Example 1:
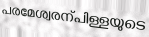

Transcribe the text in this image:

പരമേശ്വരന്പിള്ളയുടെ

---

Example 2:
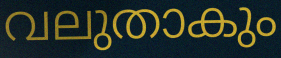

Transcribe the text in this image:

വലുതാകും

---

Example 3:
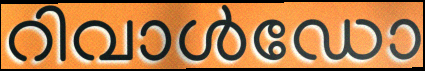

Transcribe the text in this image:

റിവാൾഡോ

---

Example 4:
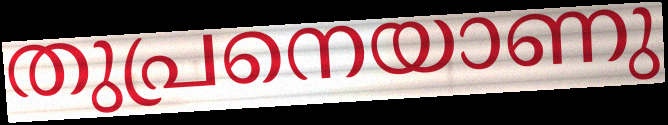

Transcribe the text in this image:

തുപ്രനെയാണു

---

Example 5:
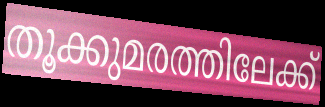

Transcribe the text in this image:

തൂക്കുമരത്തിലേക്ക്